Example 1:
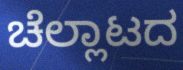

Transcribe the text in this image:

ಚೆಲ್ಲಾಟದ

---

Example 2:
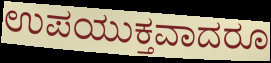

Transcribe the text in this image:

ಉಪಯುಕ್ತವಾದರೂ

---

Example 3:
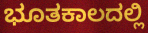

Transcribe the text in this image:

ಭೂತಕಾಲದಲ್ಲಿ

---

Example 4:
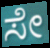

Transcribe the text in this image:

ಸೇ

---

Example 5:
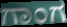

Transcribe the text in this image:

ಗಾಂಗ